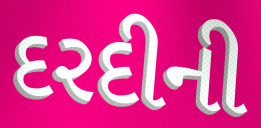
દરદીની